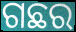
ଗଛର